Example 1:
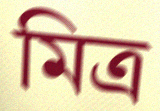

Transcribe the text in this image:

মিত্র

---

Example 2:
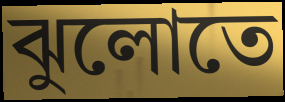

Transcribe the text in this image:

ঝুলোতে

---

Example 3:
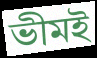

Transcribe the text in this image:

ভীমই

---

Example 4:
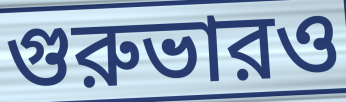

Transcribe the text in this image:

গুরুভারও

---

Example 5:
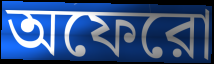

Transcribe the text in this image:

অফেরো